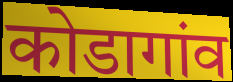
कोडागांव